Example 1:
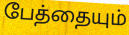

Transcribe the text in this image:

பேத்தையும்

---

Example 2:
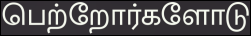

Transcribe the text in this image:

பெற்றோர்களோடு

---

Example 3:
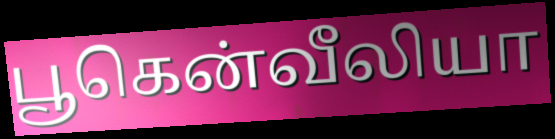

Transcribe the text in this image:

பூகென்வீலியா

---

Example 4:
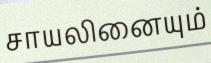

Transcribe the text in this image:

சாயலினையும்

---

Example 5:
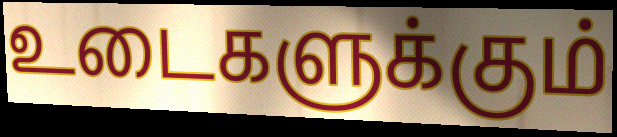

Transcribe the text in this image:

உடைகளுக்கும்